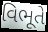
વિભૂતે